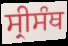
ਸ੍ਰੀਸੰਥ